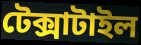
টেক্সাটাইল